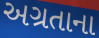
અગ્રતાના